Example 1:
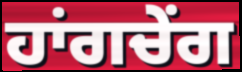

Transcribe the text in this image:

ਹਾਂਗਚੇਂਗ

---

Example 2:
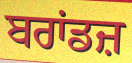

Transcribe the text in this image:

ਬਰਾਂਡਜ਼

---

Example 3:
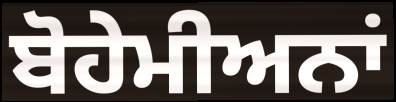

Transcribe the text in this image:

ਬੋਹੇਮੀਅਨਾਂ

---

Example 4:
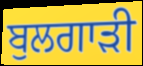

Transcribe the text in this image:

ਬੁਲਗਾੜੀ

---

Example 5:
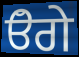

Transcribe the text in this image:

ੳੱਗੇ